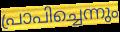
പ്രാപിച്ചെന്നും